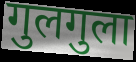
गुलगुला